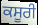
ਕਸੂਰੀ